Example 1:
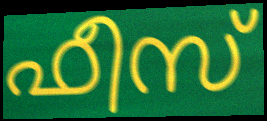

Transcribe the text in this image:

ഫീസ്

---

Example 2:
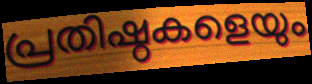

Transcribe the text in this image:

പ്രതിഷ്ഠകളെയും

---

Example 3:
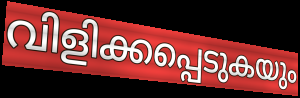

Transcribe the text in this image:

വിളിക്കപ്പെടുകയും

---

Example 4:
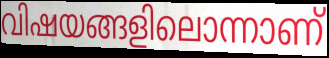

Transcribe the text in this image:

വിഷയങ്ങളിലൊന്നാണ്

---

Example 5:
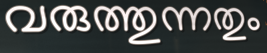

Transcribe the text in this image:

വരുത്തുന്നതും